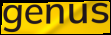
genus